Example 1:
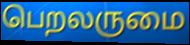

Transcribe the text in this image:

பெறலருமை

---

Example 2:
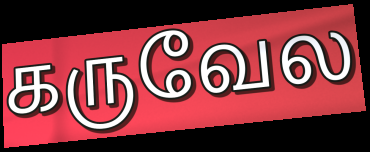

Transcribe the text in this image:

கருவேல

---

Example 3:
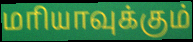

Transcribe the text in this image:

மரியாவுக்கும்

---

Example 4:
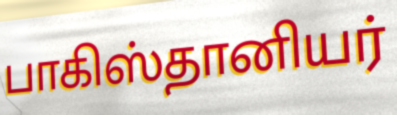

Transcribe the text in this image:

பாகிஸ்தானியர்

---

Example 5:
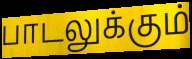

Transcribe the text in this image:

பாடலுக்கும்